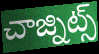
చాజ్నిట్స్